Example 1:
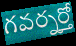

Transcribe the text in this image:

గవర్నర్తో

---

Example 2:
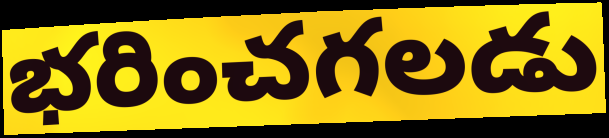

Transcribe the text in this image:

భరించగలడు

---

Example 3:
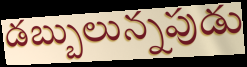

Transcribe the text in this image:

డబ్బులున్నపుడు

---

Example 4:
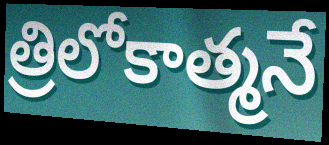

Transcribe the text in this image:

త్రిలోకాత్మనే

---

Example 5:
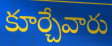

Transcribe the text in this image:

కూర్చేవారు